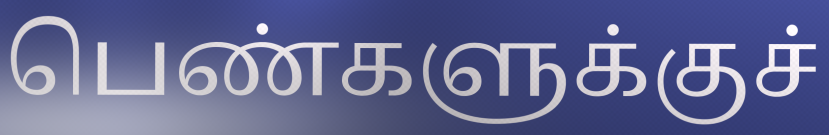
பெண்களுக்குச்